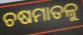
ଚଷମାତଳୁ